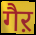
गैऱ